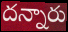
దన్నారు